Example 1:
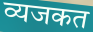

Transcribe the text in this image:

व्यजकत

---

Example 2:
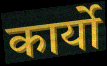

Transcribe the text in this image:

कार्यो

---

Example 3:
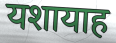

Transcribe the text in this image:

यशायाह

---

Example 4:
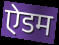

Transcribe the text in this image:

ऐडम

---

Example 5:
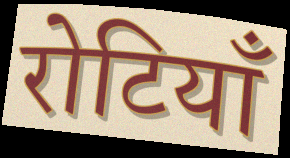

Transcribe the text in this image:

रोटियाँ